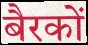
बैरकों